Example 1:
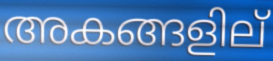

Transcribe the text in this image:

അകങ്ങളില്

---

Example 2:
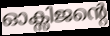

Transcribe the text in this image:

ഓക്സിജന്റെ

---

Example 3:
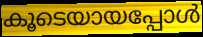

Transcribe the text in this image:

കൂടെയായപ്പോൾ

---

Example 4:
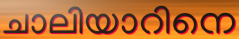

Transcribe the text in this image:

ചാലിയാറിനെ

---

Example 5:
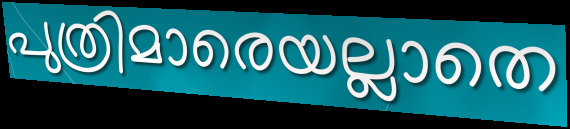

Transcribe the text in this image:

പുത്രിമാരെയല്ലാതെ